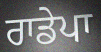
ਰਾਡੇਪਾ